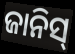
ଜାନିସ୍